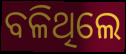
ବଳିଥିଲେ